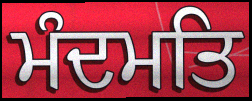
ਮੰਦਮਤਿ